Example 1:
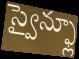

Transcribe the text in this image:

స్వైన్ఫ్లూ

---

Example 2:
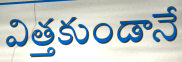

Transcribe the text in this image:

విత్తకుండానే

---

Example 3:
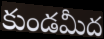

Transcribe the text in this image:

కుండమీద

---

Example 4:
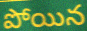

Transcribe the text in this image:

పోయిన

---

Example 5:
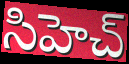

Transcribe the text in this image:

సిహెచ్